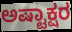
ಅಷ್ಟಾಕ್ಷರ